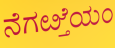
ನೆಗೞ್ತೆಯಂ